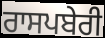
ਰਾਸਪਬੇਰੀ